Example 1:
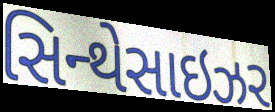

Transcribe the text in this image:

સિન્થેસાઇઝર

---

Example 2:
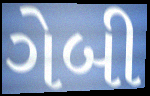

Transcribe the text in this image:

ગેબી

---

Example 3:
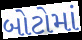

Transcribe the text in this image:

બોટોમાં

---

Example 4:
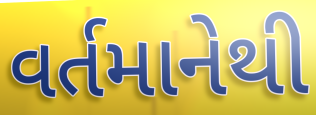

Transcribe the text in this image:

વર્તમાનેથી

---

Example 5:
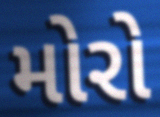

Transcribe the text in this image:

મોરો